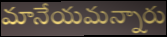
మానేయమన్నారు